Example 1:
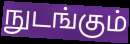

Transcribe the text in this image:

நுடங்கும்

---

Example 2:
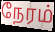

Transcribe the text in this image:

நேரம்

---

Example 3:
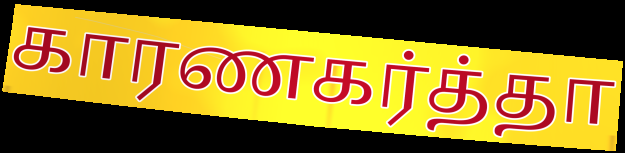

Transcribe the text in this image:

காரணகர்த்தா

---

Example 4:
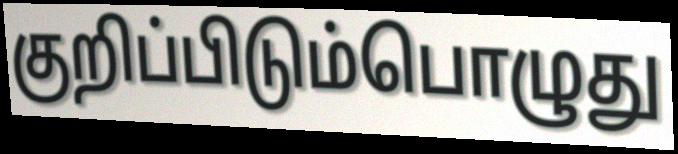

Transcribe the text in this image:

குறிப்பிடும்பொழுது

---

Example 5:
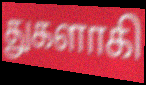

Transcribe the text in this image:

துகளாகி